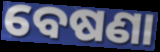
ବେଷଣା